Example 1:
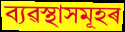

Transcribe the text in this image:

ব্যৱস্থাসমূহৰ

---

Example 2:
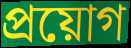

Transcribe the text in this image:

প্ৰয়োগ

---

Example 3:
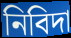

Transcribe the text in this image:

নিবিদা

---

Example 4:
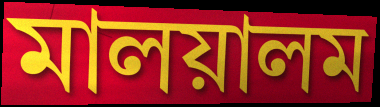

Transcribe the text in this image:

মালয়ালম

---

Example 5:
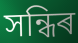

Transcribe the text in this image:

সন্ধিৰ